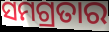
ସମଗ୍ରତାର